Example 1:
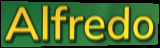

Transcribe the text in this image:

Alfredo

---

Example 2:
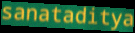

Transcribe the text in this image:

sanataditya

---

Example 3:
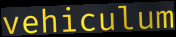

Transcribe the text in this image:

vehiculum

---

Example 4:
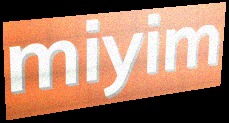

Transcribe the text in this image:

miyim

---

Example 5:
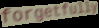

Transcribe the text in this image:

forgetfully